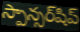
స్పాన్సర్‌షిప్